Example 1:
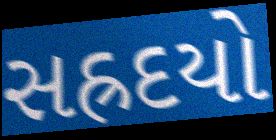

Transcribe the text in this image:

સહ્રદયો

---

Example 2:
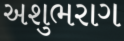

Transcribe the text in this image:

અશુભરાગ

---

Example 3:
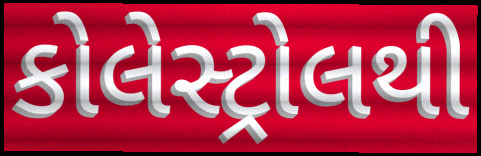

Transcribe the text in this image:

કોલેસ્ટ્રોલથી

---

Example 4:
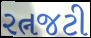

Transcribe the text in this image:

રત્નજટી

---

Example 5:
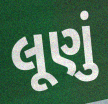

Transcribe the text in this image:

લૂણું